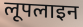
लूपलाइन